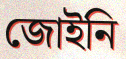
জোইনি